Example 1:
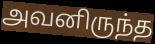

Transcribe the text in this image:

அவனிருந்த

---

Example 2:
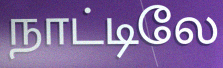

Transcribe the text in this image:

நாட்டிலே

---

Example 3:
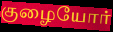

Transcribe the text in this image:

குழையோர்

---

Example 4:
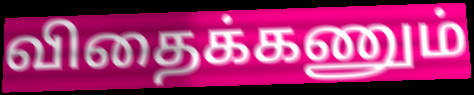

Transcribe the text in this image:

விதைக்கணும்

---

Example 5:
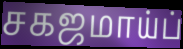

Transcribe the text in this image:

சகஜமாய்ப்